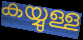
കയ്യുള്ള